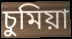
চুমিয়া